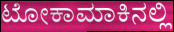
ಟೋಕಾಮಾಕಿನಲ್ಲಿ